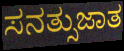
ಸನತ್ಸುಜಾತ